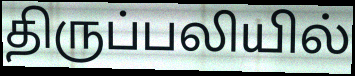
திருப்பலியில்